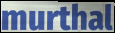
murthal